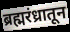
ब्रह्मरंध्रातून